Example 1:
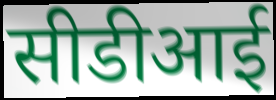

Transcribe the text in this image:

सीडीआई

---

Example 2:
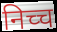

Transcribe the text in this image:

निच्च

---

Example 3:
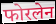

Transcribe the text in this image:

फोरलेन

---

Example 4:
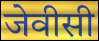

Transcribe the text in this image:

जेवीसी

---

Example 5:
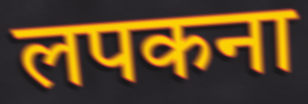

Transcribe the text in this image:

लपकना